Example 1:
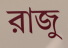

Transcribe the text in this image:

রাজু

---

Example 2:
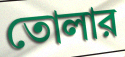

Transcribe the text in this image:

তোলার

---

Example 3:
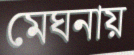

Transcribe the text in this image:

মেঘনায়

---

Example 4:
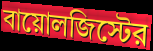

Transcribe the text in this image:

বায়োলজিস্টের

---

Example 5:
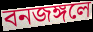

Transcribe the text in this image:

বনজঙ্গলে